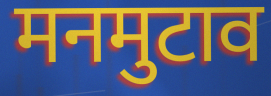
मनमुटाव